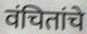
वंचितांचे